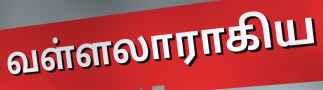
வள்ளலாராகிய